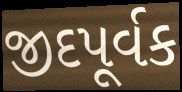
જીદપૂર્વક